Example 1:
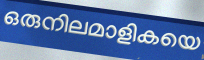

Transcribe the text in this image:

ഒരുനിലമാളികയെ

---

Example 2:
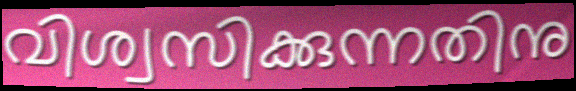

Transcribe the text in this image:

വിശ്വസിക്കുന്നതിനു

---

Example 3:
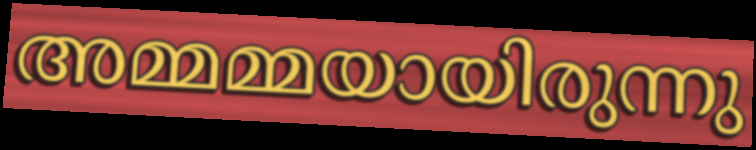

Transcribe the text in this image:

അമ്മമ്മയായിരുന്നു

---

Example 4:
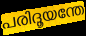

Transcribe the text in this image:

പരിദൂയന്തേ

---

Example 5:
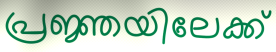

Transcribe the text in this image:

പ്രജ്ഞയിലേക്ക്